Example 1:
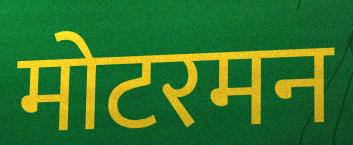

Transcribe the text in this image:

मोटरमन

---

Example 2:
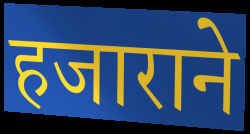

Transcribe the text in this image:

हजाराने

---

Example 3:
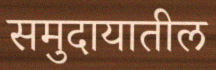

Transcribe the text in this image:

समुदायातील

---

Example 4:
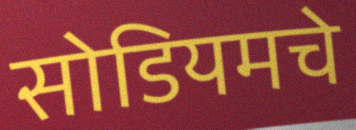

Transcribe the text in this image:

सोडियमचे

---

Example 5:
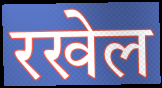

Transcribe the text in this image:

रखेल